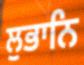
ਲੁਭਾਨਿ